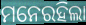
ମନେରହିଲା